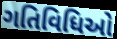
ગતિવિધિઓ